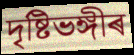
দৃষ্টিভঙ্গীৰ